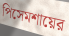
পিসেমশায়ের